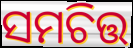
ସମଚିତ୍ତ